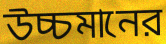
উচ্চমানের